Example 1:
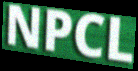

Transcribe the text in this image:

NPCL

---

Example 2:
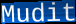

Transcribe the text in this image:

Mudit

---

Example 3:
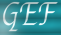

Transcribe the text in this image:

GEF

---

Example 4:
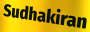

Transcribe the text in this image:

Sudhakiran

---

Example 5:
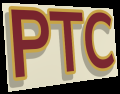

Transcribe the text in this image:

PTC